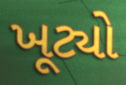
ખૂટ્યો